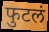
फुटलं